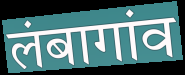
लंबागांव